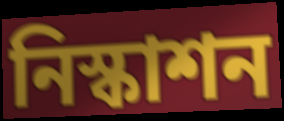
নিস্কাশন